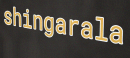
shingarala